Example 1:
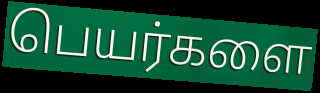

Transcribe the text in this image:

பெயர்களை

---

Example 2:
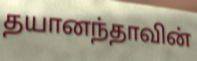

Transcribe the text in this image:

தயானந்தாவின்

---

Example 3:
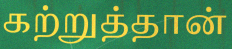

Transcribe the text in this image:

கற்றுத்தான்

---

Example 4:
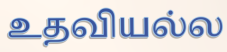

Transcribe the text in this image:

உதவியல்ல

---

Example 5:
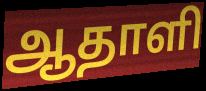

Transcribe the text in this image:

ஆதாளி